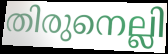
തിരുനെല്ലി